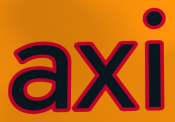
axi